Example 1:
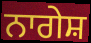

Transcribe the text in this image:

ਨਾਗੇਸ਼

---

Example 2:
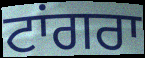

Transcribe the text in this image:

ਟਾਂਗਰਾ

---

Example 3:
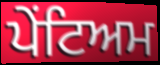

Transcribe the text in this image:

ਪੇਂਟਿਅਮ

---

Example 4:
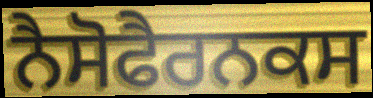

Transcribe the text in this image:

ਨੈਸੋਫੈਰਨਕਸ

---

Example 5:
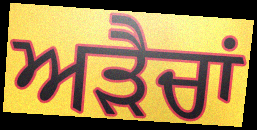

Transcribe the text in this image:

ਅੜੈਚਾਂ